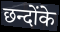
छन्दोंके